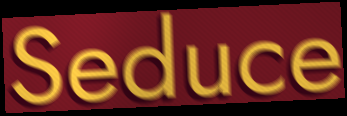
Seduce